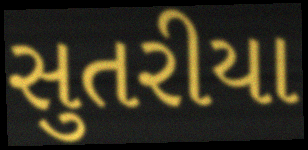
સુતરીયા